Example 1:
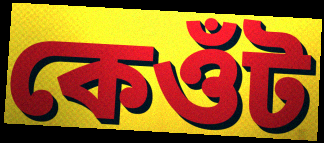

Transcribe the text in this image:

কেওঁট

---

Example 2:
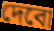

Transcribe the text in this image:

দেবো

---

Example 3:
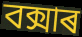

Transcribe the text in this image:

বক্সাৰ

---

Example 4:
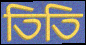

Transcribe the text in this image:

তিতি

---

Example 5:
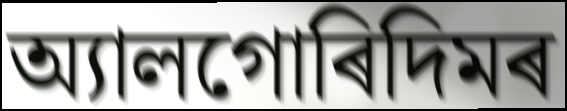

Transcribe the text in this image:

অ্যালগোৰিদিমৰ